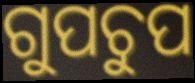
ଗୁପଚୁପ